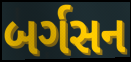
બર્ગસન